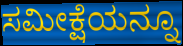
ಸಮೀಕ್ಷೆಯನ್ನೂ